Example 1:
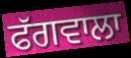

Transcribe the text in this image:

ਫੱਗਵਾਲਾ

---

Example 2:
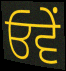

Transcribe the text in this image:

ਓਵੇਂ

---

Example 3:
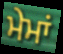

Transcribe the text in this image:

ਮੇਮਾਂ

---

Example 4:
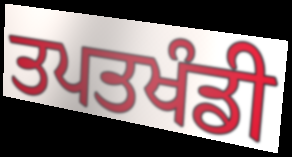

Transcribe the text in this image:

ਤਪਤਖੰਡੀ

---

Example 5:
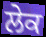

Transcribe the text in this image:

ਲੇਕ